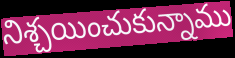
నిశ్చయించుకున్నాము